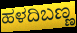
ಹಳದಿಬಣ್ಣ